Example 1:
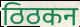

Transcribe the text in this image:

ठिठकन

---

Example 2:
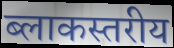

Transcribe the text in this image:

ब्लाकस्तरीय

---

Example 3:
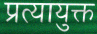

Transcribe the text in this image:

प्रत्यायुक्त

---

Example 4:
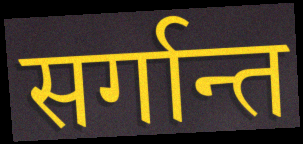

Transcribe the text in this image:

सर्गान्त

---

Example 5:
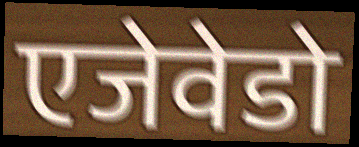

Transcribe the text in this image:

एजेवेडो